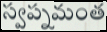
స్వప్నమంత